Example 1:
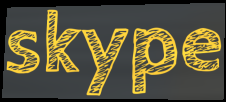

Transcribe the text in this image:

skype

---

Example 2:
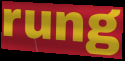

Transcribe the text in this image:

rung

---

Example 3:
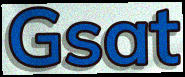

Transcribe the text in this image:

Gsat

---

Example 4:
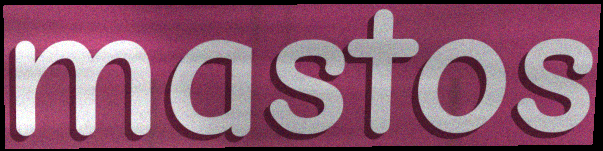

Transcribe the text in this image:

mastos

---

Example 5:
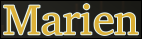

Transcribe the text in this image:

Marien